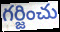
గర్జించు